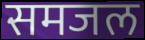
समजल